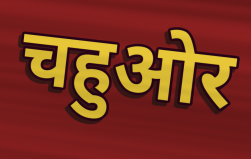
चहुओर